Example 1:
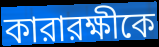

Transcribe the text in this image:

কারারক্ষীকে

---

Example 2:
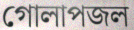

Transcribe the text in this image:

গোলাপজল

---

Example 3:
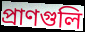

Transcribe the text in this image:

প্রাণগুলি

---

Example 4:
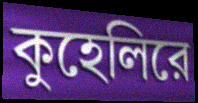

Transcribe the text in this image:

কুহেলিরে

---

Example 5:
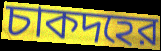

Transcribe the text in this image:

চাকদহের